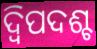
ଦ୍ବିପଦଶ୍ଚ